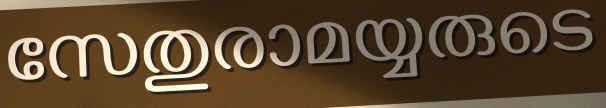
സേതുരാമയ്യരുടെ